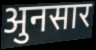
अुनसार